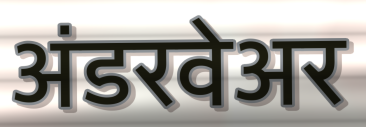
अंडरवेअर